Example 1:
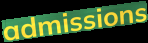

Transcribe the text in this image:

admissions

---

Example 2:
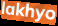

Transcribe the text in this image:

lakhyo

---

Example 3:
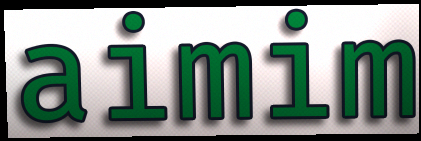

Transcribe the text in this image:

aimim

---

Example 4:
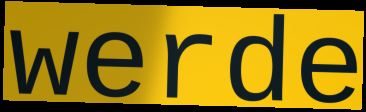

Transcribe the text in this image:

werde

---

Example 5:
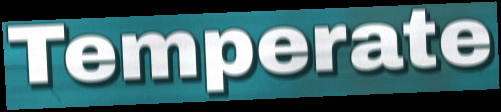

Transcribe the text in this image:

Temperate